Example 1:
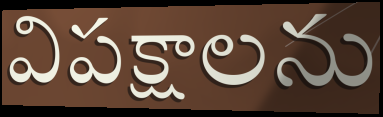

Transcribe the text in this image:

విపక్షాలను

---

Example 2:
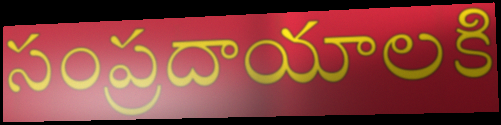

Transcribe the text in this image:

సంప్రదాయాలకి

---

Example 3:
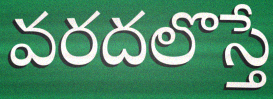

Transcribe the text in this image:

వరదలొస్తే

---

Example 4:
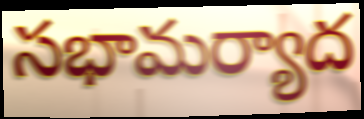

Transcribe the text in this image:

సభామర్యాద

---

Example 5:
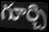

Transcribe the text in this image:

గూర్చి